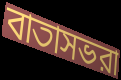
বাতাসভরা